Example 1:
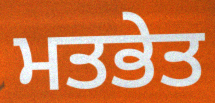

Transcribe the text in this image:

ਮਤਭੇਤ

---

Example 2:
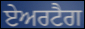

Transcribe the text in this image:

ਏਅਰਟੈਗ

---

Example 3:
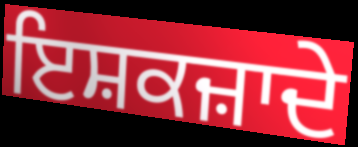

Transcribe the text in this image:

ਇਸ਼ਕਜ਼ਾਦੇ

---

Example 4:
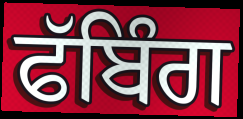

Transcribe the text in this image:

ਫੱਬਿੰਗ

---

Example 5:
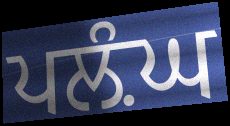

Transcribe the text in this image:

ਪਲ਼ੰਘ